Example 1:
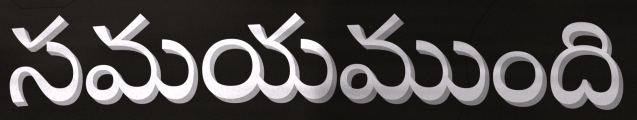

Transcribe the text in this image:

సమయముంది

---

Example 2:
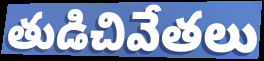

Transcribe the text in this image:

తుడిచివేతలు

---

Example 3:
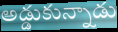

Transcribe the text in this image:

అడ్డుకున్నాడు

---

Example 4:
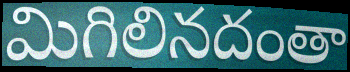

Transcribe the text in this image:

మిగిలినదంతా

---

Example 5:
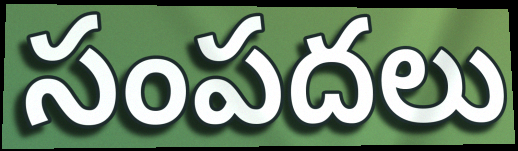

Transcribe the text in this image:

సంపదలు